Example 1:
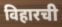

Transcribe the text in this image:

विहारची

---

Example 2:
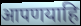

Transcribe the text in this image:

आपणयाहि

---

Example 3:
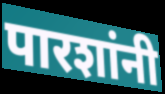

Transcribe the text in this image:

पारशांनी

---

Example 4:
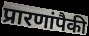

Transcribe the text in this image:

प्रारणांपैकी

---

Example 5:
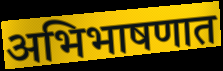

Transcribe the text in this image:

अभिभाषणात